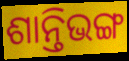
ଶାନ୍ତିଭଙ୍ଗ